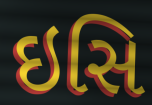
ઇસિ